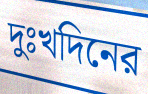
দুঃখদিনের